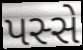
પસ્સે